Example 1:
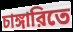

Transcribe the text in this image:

চাঙ্গারিতে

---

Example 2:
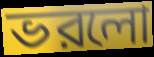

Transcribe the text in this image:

ভরলো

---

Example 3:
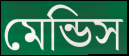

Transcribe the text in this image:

মেন্ডিস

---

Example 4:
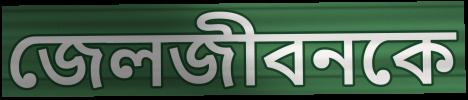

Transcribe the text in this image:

জেলজীবনকে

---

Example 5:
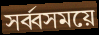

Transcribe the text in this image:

সর্ব্বসময়ে